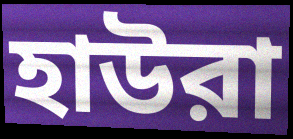
হাউরা